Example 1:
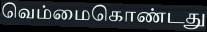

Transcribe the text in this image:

வெம்மைகொண்டது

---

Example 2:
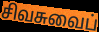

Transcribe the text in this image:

சிவசுவைப்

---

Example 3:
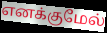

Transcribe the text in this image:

எனக்குமேல்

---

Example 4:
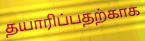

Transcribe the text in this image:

தயாரிப்பதற்காக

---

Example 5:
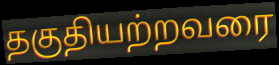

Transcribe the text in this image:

தகுதியற்றவரை